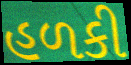
હળકી